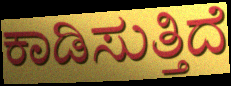
ಕಾಡಿಸುತ್ತಿದೆ